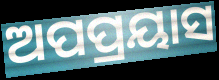
ଅପପ୍ରୟାସ